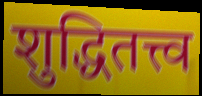
शुद्धितत्त्व